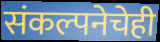
संकल्पनेचेही